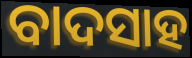
ବାଦସାହ